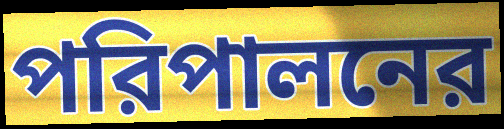
পরিপালনের